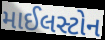
માઈલસ્ટોન